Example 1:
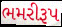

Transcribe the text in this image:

ભમરીરૂપ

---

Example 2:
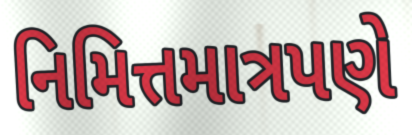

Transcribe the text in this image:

નિમિત્તમાત્રપણે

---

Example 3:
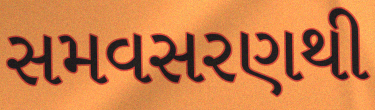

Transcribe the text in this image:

સમવસરણથી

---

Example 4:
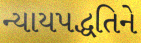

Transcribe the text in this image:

ન્યાયપદ્ધતિને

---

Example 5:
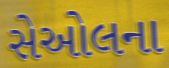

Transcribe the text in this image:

સેઓલના